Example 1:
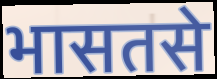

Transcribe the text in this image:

भासतसे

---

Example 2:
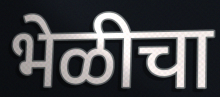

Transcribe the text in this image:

भेळीचा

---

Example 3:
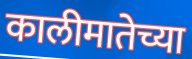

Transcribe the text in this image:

कालीमातेच्या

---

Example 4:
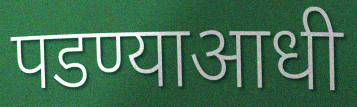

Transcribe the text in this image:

पडण्याआधी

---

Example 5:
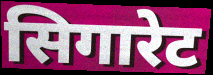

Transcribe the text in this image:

सिगारेट